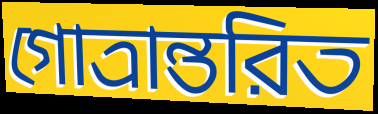
গোত্রান্তরিত